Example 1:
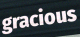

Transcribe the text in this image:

gracious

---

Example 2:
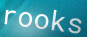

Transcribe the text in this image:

rooks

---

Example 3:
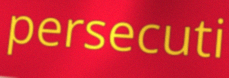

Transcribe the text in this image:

persecuti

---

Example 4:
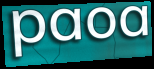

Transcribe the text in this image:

paoa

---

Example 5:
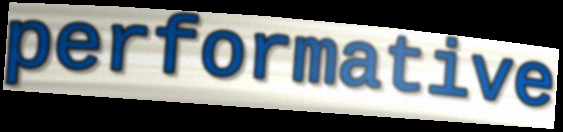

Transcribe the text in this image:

performative